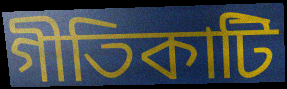
গীতিকাটি